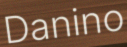
Danino